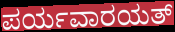
ಪರ್ಯವಾರಯತ್